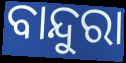
ବାନ୍ଦୁରା